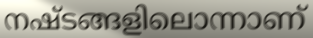
നഷ്ടങ്ങളിലൊന്നാണ്